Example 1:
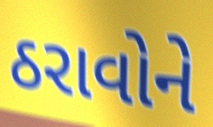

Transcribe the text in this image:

ઠરાવોને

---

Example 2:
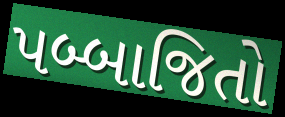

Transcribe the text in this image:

પબ્બાજિતો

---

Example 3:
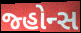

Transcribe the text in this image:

જ્હોન્સ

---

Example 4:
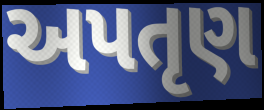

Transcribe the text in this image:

અપતૃણ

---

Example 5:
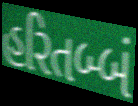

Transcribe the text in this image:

હરિતબ્બં